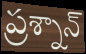
ప్రశ్నాన్